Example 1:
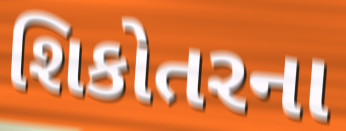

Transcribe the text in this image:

શિકોતરના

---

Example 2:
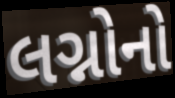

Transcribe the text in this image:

લગ્નોનો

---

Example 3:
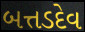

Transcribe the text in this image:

બત્તડદેવ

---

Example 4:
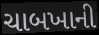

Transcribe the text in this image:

ચાબખાની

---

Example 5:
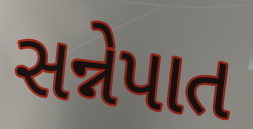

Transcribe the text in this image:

સન્નેપાત